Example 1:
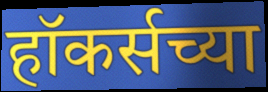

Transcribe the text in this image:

हॉकर्सच्या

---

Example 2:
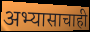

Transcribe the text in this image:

अभ्यासाचाही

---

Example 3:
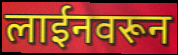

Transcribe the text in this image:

लाईनवरून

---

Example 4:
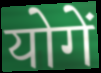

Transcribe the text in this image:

योगें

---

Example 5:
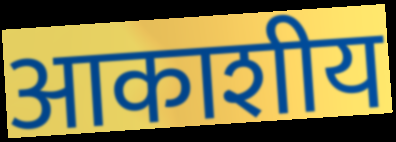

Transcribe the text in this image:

आकाशीय